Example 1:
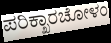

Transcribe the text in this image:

ಪರಿಕ್ಖಾರಚೋಳಂ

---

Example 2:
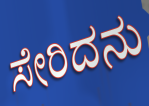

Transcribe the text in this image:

ಸೇರಿದನು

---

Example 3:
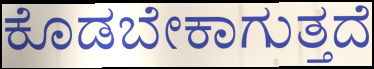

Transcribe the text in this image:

ಕೊಡಬೇಕಾಗುತ್ತದೆ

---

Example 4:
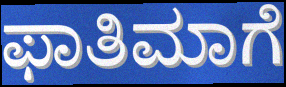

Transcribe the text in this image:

ಫಾತಿಮಾಗೆ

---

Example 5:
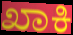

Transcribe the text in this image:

ಖಾಕಿ